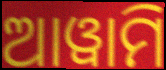
ଆୱାମି